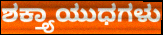
ಶಕ್ತ್ಯಾಯುಧಗಳು